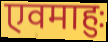
एवमाहुः